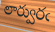
లార్వురఁ